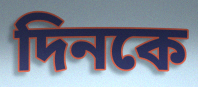
দিনকে